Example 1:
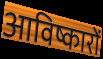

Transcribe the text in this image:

आविष्‍कारों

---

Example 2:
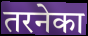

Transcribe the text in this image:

तरनेका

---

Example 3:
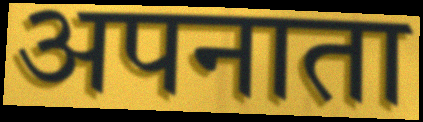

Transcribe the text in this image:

अपनाता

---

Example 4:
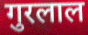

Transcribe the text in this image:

गुरलाल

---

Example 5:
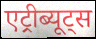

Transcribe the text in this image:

एट्रीब्यूट्स